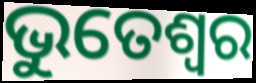
ଭୁତେଶ୍ୱର